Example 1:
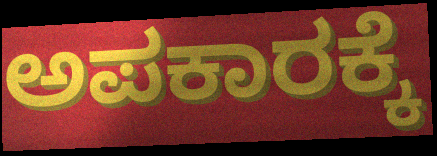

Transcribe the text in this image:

ಅಪಕಾರಕ್ಕೆ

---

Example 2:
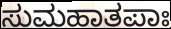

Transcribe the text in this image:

ಸುಮಹಾತಪಾಃ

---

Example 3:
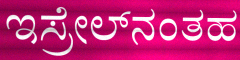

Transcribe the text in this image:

ಇಸ್ರೇಲ್‌ನಂತಹ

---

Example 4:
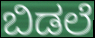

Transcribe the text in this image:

ಬಿಡಲೆ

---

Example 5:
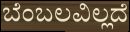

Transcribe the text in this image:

ಬೆಂಬಲವಿಲ್ಲದೆ